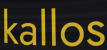
kallos